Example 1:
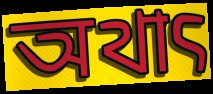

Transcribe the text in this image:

অথাৎ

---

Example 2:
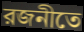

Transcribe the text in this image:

রজনীতে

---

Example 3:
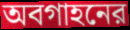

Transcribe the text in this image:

অবগাহনের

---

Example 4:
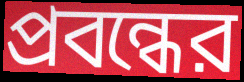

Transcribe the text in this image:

প্রবন্ধের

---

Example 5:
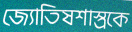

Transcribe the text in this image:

জ্যোতিষশাস্ত্রকে